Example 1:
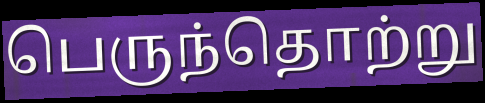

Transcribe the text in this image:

பெருந்தொற்று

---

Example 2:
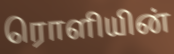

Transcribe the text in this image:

ரொளியின்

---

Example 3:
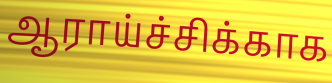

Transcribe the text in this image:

ஆராய்ச்சிக்காக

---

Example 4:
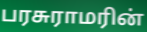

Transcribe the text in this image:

பரசுராமரின்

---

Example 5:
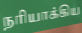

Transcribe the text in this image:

நரியாக்கிய